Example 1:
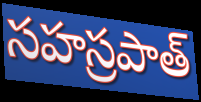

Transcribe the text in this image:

సహస్రపాత్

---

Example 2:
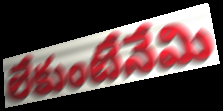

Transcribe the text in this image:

లేకుంటేనేమి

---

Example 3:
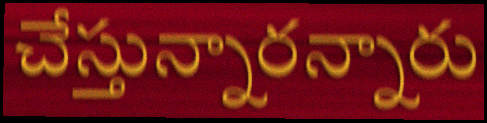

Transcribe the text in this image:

చేస్తున్నారన్నారు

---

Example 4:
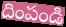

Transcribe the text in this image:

దింపండి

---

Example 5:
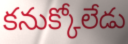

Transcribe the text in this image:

కనుక్కోలేడు